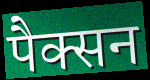
पैक्सन